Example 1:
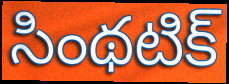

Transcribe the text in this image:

సింథటిక్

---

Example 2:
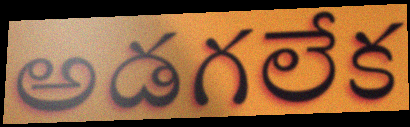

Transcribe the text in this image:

అడగలేక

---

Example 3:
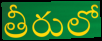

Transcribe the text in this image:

తీరులో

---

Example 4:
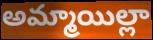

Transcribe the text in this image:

అమ్మాయిల్లా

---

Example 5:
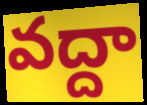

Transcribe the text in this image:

వద్దా